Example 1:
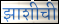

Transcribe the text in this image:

झाशीची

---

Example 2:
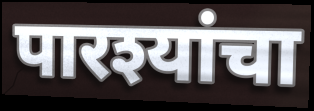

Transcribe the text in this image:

पारश्यांचा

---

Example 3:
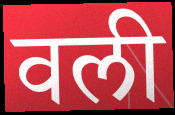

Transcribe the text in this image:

वली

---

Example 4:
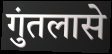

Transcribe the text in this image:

गुंतलासे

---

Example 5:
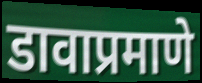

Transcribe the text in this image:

डावाप्रमाणे